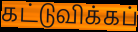
கட்டுவிக்கப்